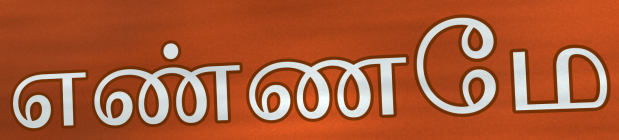
எண்ணமே